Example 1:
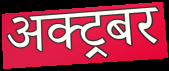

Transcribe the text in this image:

अक्ट्रबर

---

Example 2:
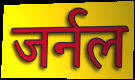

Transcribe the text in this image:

जर्नल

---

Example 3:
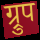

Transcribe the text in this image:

ग्र्रुप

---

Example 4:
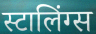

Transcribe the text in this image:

स्टालिंग्स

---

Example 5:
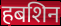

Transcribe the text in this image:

हबशिन